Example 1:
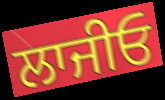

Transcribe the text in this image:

ਲਾਜੀਓ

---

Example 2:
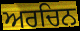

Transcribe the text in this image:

ਅਰਚਿਨ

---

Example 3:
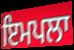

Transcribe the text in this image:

ਇਮਪਲਾ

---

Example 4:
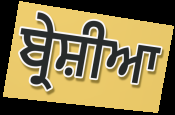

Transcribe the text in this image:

ਬ੍ਰੇਸ਼ੀਆ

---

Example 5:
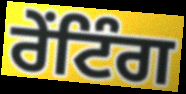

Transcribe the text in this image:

ਰੇਂਟਿੰਗ